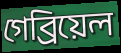
গেব্রিয়েল